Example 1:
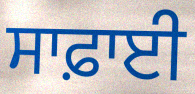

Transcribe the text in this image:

ਸਾਫ਼ਾਈ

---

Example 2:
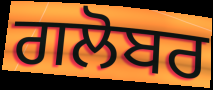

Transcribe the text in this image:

ਗਲੋਬਰ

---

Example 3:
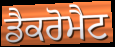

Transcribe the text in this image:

ਡੈਕਰੋਮੈਟ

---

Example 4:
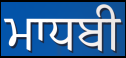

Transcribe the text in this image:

ਮਾਧਬੀ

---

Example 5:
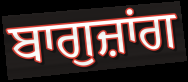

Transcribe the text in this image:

ਬਾਗੁਜ਼ਾਂਗ